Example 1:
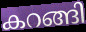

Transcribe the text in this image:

കറങ്ങി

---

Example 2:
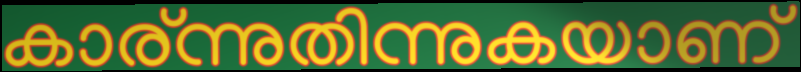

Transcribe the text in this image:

കാര്ന്നുതിന്നുകയാണ്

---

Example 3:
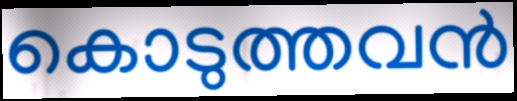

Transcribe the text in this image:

കൊടുത്തവൻ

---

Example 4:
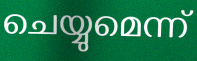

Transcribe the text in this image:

ചെയ്യുമെന്ന്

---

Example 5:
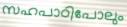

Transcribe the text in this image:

സഹപാഠിപോലും